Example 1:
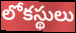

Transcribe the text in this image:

లోకస్థులు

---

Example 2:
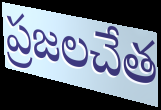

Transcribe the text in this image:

ప్రజలచేత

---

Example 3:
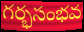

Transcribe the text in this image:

గర్భసంభవ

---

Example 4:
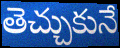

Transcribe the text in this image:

తెచ్చుకునే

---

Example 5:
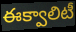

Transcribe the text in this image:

ఈక్వాలిటీ